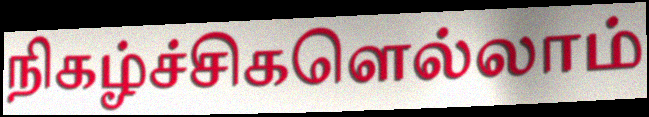
நிகழ்ச்சிகளெல்லாம்